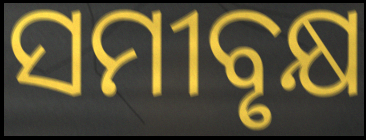
ସମୀବୃକ୍ଷ